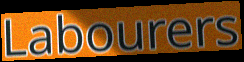
Labourers